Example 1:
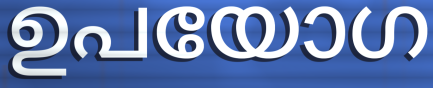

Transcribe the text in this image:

ഉപയോഗ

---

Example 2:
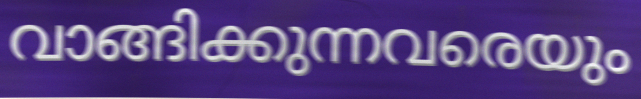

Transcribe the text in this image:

വാങ്ങിക്കുന്നവരെയും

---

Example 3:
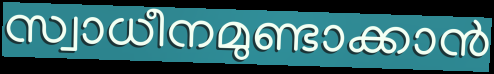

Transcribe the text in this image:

സ്വാധീനമുണ്ടാക്കാൻ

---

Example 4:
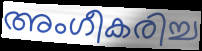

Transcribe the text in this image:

അംഗീകരിച്ച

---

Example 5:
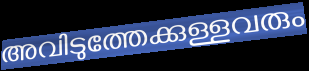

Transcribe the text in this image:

അവിടുത്തേക്കുള്ളവരും